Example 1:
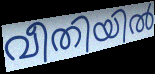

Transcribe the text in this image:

വീതിയിൽ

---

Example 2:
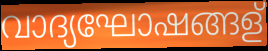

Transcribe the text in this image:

വാദ്യഘോഷങ്ങള്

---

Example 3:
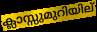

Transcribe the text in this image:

ക്ലാസ്സുമുറിയില്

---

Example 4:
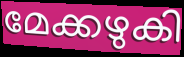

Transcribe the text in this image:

മേക്കഴുകി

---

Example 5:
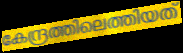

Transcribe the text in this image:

കേന്ദ്രത്തിലെത്തിയത്